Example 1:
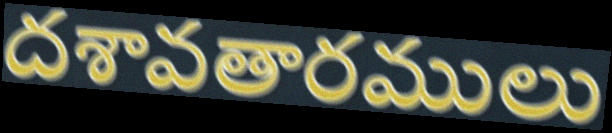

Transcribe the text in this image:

దశావతారములు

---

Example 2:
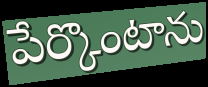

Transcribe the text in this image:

పేర్కొంటాను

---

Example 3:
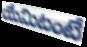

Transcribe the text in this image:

యేమిటంటే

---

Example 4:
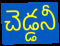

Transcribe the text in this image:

చెడ్డనీ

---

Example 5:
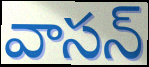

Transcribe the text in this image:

వాసన్